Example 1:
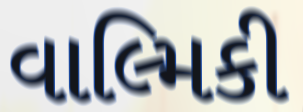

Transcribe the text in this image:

વાલ્મિકી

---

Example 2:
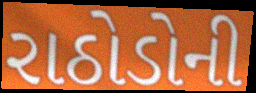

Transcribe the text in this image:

રાઠોડોની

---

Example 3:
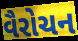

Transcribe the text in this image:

વૈરોચન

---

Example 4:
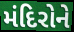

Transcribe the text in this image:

મંદિરોને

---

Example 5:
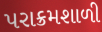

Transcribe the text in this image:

પરાક્રમશાળી